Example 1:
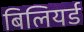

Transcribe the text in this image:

बिलियर्ड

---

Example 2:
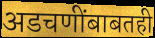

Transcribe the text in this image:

अडचणींबाबतही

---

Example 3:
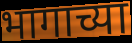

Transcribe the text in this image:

भागाच्या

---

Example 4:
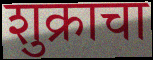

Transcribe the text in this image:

शुक्राचा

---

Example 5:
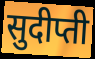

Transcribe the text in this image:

सुदीप्ती